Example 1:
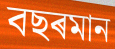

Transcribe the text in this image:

বছৰমান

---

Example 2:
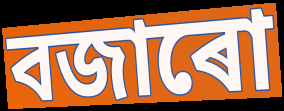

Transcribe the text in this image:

বজাৰো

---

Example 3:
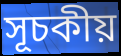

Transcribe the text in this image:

সূচকীয়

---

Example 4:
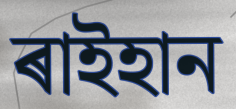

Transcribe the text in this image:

ৰাইহান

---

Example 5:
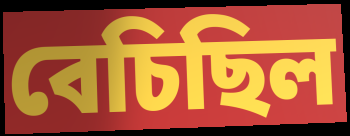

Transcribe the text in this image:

বেচিছিল